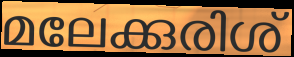
മലേക്കുരിശ്